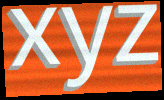
xyz